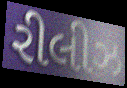
રીલીઝ